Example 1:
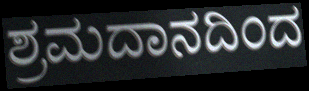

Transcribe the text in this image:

ಶ್ರಮದಾನದಿಂದ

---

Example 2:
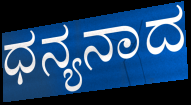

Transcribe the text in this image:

ಧನ್ಯನಾದ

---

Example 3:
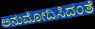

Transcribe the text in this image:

ಅನುಮೋದಿಸಿದಂತೆ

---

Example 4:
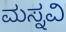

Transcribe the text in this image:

ಮಸ್ನವಿ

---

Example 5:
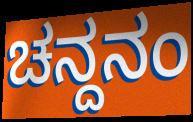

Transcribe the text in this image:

ಚನ್ದನಂ